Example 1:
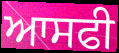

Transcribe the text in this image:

ਆਸਫੀ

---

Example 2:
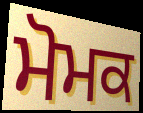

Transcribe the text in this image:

ਮੋਮਕ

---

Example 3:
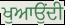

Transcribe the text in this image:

ਖੁਆਉਂਦੀ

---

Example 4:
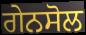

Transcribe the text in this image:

ਗੇਨਸੋਲ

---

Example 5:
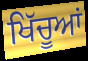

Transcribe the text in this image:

ਖਿੱਚੂਆਂ